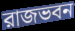
রাজভবন